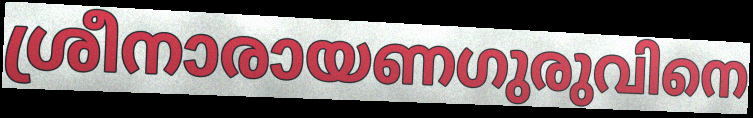
ശ്രീനാരായണഗുരുവിനെ